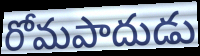
రోమపాదుడు